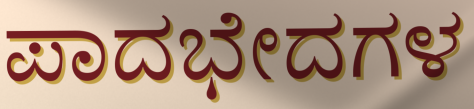
ಪಾದಭೇದಗಳ